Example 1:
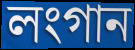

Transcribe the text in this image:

লংগান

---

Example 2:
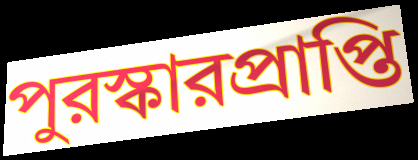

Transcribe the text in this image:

পুরস্কারপ্রাপ্তি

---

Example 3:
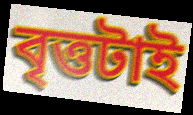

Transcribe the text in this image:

বৃত্তটাই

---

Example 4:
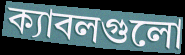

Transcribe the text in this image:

ক্যাবলগুলো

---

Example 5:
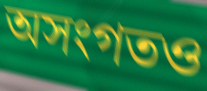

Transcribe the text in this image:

অসংগতও